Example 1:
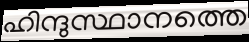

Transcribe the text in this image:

ഹിന്ദുസ്ഥാനത്തെ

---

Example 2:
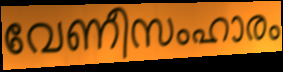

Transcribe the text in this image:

വേണീസംഹാരം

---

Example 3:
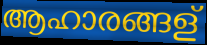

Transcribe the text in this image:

ആഹാരങ്ങള്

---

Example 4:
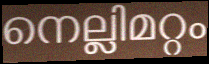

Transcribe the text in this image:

നെല്ലിമറ്റം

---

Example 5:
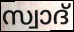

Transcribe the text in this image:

സ്വാദ്